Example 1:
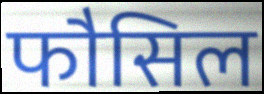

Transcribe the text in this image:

फौसिल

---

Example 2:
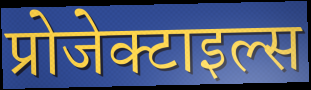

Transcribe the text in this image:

प्रोजेक्टाइल्स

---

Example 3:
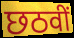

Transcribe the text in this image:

छठवीं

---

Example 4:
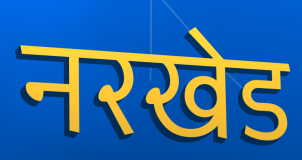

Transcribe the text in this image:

नरखेड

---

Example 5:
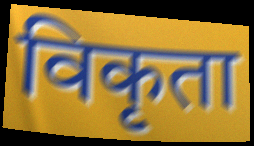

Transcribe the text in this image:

विकृता